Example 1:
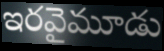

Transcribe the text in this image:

ఇరవైమూడు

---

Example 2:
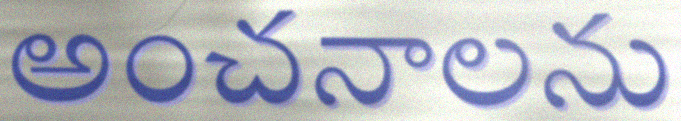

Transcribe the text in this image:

అంచనాలను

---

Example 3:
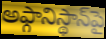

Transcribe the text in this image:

అఫ్గానిస్థాన్‌పై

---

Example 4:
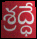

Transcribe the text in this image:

శ్రద్ధే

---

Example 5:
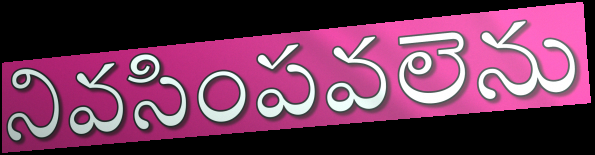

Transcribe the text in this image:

నివసింపవలెను